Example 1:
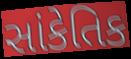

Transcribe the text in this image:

સાંકેતિક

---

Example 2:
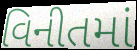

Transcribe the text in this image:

વિનીતમાં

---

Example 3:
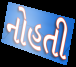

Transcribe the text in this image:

નોહતી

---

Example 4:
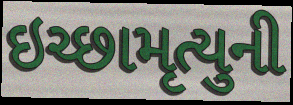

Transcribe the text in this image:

ઇચ્છામૃત્યુની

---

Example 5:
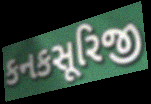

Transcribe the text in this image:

કનકસૂરિજી